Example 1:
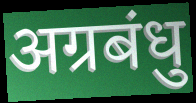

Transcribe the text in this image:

अग्रबंधु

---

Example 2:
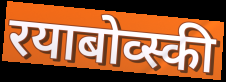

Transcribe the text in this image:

रयाबोव्स्की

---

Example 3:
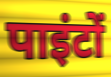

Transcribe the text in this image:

पाइंटों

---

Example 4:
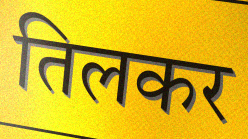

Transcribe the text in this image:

तिलकर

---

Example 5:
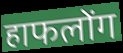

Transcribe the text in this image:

हाफलोंग